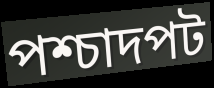
পশ্চাদপট